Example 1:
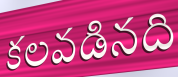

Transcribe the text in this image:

కలవడినది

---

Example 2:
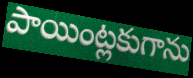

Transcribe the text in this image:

పాయింట్లకుగాను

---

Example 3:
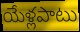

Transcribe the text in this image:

యేళ్లపాటు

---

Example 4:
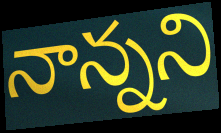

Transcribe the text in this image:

నాన్నని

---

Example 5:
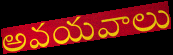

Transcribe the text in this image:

అవయవాలు